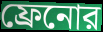
ফ্রেনোর